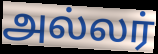
அல்லர்